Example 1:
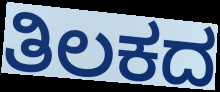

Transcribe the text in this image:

ತಿಲಕದ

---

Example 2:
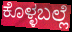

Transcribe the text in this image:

ಕೊಳ್ಳಬಲ್ಲೆ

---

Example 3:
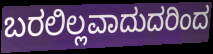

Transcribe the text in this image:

ಬರಲಿಲ್ಲವಾದುದರಿಂದ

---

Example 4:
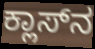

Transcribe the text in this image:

ಕ್ಲಾಸ್‌ನ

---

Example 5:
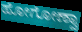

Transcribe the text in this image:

ಹೋಗೋಣ್ವಾ